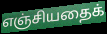
எஞ்சியதைக்